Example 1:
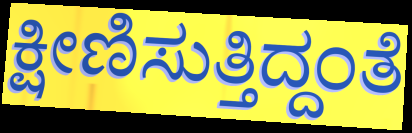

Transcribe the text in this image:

ಕ್ಷೀಣಿಸುತ್ತಿದ್ದಂತೆ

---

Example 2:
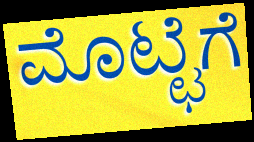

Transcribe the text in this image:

ಮೊಟ್ಟೆಗೆ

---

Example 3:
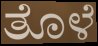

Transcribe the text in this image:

ತೊಳೆ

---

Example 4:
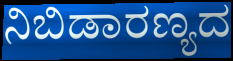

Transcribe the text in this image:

ನಿಬಿಡಾರಣ್ಯದ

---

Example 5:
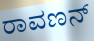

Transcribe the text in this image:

ರಾವಣನ್